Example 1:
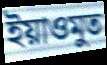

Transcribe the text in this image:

ইয়াওমুত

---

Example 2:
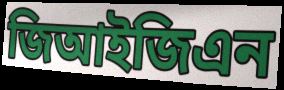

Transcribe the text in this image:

জিআইজিএন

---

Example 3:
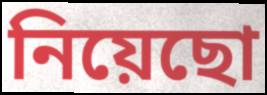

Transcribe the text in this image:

নিয়েছো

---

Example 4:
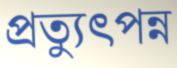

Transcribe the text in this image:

প্রত্যুৎপন্ন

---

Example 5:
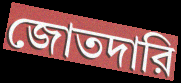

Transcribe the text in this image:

জোতদারি